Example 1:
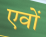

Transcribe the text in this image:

एवों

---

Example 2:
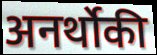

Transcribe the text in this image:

अनर्थोकी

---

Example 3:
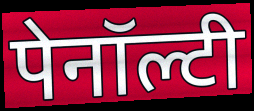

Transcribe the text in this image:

पेनॉल्टी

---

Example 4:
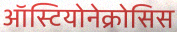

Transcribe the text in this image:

ऑस्टियोनेक्रोसिस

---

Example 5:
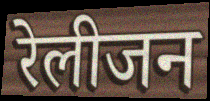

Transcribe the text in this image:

रेलीजन